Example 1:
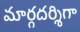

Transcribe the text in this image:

మార్గదర్శిగా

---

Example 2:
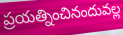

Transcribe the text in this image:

ప్రయత్నించినందువల్ల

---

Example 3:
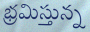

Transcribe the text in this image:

భ్రమిస్తున్న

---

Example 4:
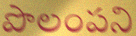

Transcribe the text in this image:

పొలంపని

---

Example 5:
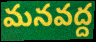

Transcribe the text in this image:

మనవద్ద